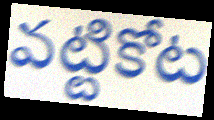
వట్టికోట